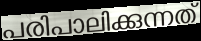
പരിപാലിക്കുന്നത്